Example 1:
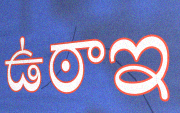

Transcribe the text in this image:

ఉఠాఇ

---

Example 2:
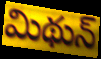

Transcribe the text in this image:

మిథున్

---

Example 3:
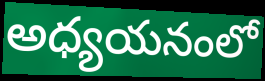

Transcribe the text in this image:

అధ్యయనంలో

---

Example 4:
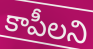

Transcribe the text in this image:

కాపీలని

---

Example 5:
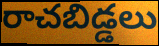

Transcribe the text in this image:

రాచబిడ్డలు